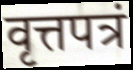
वृत्तपत्रं